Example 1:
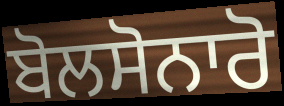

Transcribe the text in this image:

ਬੋਲਸੋਨਾਰੋ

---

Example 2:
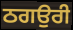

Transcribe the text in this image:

ਠਗਉਰੀ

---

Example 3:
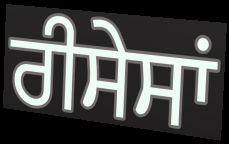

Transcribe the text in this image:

ਰੀਸੇਸਾਂ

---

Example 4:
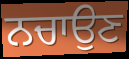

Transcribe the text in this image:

ਨਚਾਉਣ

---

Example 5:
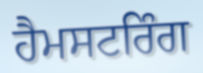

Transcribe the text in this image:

ਹੈਮਸਟਰਿੰਗ